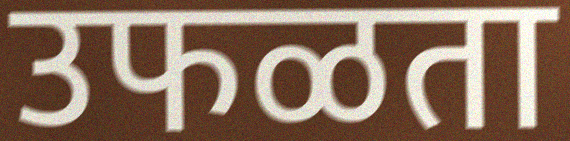
उफळता